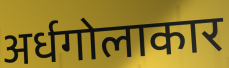
अर्धगोलाकार